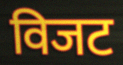
विजट